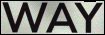
WAY